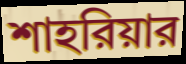
শাহরিয়ার